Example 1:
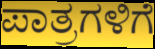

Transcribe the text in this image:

ಪಾತ್ರಗಳಿಗೆ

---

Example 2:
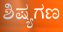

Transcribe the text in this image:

ಶಿಷ್ಯಗಣ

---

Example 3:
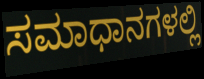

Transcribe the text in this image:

ಸಮಾಧಾನಗಳಲ್ಲಿ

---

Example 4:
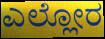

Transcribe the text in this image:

ಎಲ್ಲೋರ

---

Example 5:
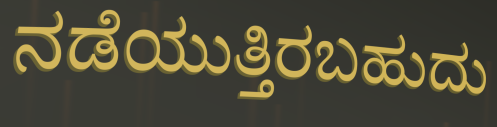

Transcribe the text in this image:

ನಡೆಯುತ್ತಿರಬಹುದು